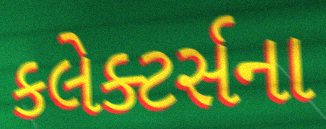
કલેક્ટર્સના